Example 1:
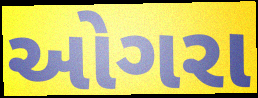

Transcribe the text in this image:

ઓગરા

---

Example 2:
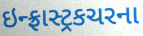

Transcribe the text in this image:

ઇન્ફ્રાસ્ટ્રકચરના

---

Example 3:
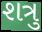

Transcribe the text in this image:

શત્રુ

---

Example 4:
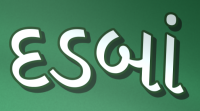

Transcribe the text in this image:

દડબાં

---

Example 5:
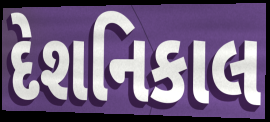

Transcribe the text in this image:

દેશનિકાલ